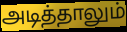
அடித்தாலும்